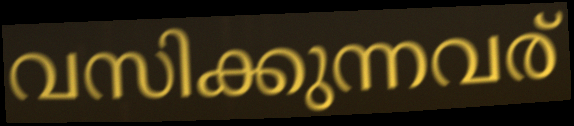
വസിക്കുന്നവര്